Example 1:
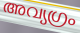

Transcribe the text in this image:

അവ്യഗ്രം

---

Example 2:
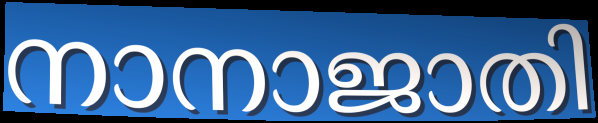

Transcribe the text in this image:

നാനാജാതി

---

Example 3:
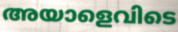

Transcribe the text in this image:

അയാളെവിടെ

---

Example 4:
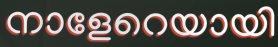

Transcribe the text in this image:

നാളേറെയായി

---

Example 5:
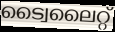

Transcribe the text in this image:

ട്വൈലൈറ്റ്